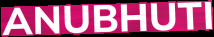
ANUBHUTI